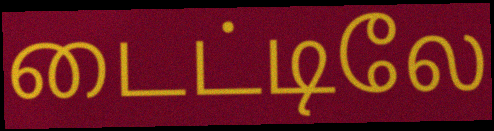
டைட்டிலே